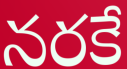
నరకే